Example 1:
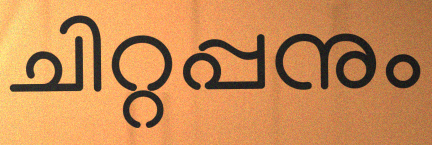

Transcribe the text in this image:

ചിറ്റപ്പനും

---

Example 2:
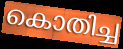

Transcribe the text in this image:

കൊതിച്ച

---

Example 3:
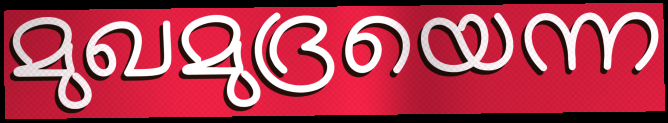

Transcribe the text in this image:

മുഖമുദ്രയെന്ന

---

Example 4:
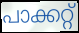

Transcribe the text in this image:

പാക്കറ്റ്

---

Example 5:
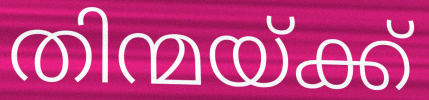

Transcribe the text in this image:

തിന്മയ്ക്ക്